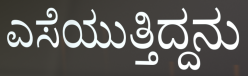
ಎಸೆಯುತ್ತಿದ್ದನು